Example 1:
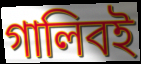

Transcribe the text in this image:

গালিবই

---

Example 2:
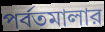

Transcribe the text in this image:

পর্বতমালার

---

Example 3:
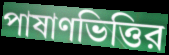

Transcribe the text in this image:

পাষাণভিত্তির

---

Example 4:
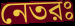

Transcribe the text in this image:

নেতরঃ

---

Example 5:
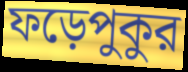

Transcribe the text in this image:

ফড়েপুকুর